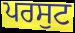
ਪਰਸੁਟ